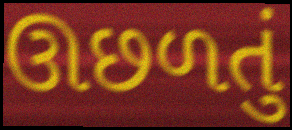
ઊછળતું